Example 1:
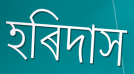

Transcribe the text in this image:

হৰিদাস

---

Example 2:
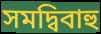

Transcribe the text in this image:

সমদ্বিবাহু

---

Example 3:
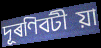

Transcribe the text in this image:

দূৰণিবটীয়া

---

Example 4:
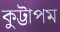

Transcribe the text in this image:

কুট্টাপম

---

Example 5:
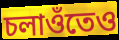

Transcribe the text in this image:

চলাওঁতেও